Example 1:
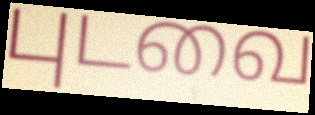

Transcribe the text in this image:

புடவை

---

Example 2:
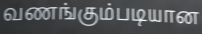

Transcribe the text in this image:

வணங்கும்படியான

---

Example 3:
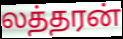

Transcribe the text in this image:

லத்தரன்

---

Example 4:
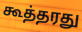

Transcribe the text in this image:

கூத்தரது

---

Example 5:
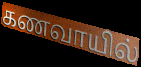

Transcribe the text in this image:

கணவாயில்